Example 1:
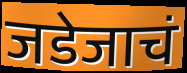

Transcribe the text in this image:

जडेजाचं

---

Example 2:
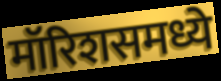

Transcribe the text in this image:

मॉरिशसमध्ये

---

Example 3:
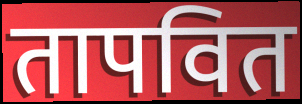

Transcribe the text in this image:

तापवित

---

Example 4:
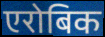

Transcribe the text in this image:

एरोबिक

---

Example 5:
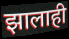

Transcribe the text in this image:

झालाही